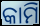
କାମି